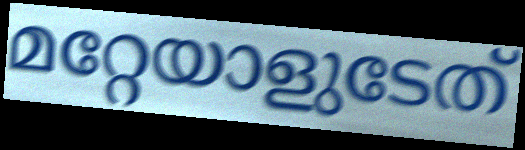
മറ്റേയാളുടേത്